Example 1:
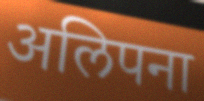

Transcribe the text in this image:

अलिपना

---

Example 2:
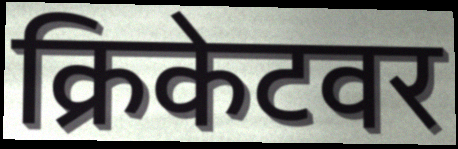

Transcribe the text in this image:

क्रिकेटवर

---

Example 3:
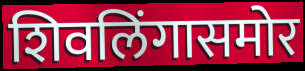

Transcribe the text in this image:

शिवलिंगासमोर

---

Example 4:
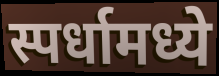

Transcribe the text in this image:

स्पर्धामध्ये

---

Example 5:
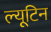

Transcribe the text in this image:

ल्यूटिन